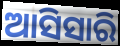
ଆସିସାରି